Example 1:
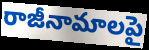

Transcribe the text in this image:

రాజీనామాలపై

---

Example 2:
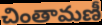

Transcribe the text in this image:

చింతామణీ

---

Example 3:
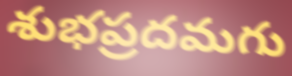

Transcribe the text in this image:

శుభప్రదమగు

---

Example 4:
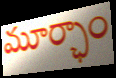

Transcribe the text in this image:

మూర్ఛాం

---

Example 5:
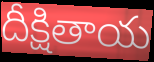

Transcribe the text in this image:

దీక్షితాయ